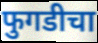
फुगडीचा